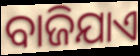
ବାଜିଯାଏ